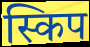
स्किप